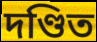
দণ্ডিত